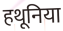
हथूनिया